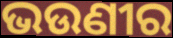
ଭଉଣୀର